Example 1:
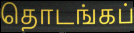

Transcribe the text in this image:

தொடங்கப்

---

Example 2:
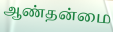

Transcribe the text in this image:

ஆண்தன்மை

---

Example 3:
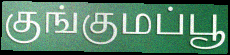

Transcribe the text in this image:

குங்குமப்பூ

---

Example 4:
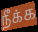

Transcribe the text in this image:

நீக்க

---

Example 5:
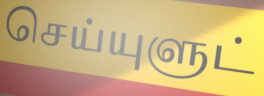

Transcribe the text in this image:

செய்யுளுட்